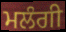
ਮਲੰਗੀ